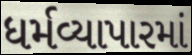
ધર્મવ્યાપારમાં